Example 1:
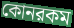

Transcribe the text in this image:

কোনরকম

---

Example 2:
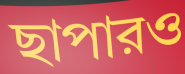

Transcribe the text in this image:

ছাপারও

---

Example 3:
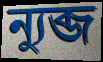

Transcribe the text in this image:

ন্যুব্জ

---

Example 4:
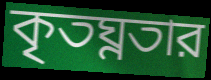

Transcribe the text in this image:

কৃতঘ্নতার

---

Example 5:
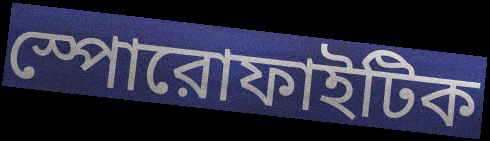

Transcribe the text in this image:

স্পোরোফাইটিক